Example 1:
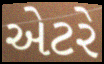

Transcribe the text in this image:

એટરે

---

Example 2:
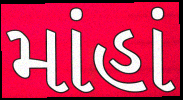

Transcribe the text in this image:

માંહાં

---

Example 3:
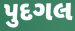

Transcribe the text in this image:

પુદગલ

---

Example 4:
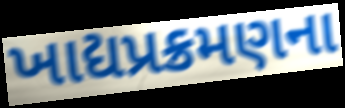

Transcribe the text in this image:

ખાદ્યપ્રક્રમણના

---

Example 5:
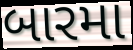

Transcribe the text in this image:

બારમા